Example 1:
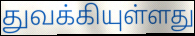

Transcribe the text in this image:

துவக்கியுள்ளது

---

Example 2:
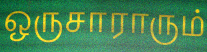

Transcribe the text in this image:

ஒருசாராரும்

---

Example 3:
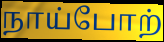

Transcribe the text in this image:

நாய்போற்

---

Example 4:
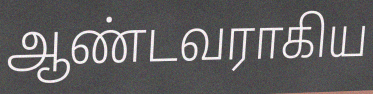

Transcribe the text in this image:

ஆண்டவராகிய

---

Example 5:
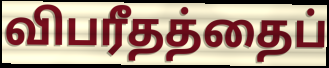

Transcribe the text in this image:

விபரீதத்தைப்